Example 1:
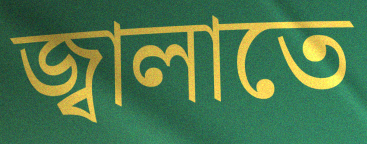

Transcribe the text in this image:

জ্বালাতে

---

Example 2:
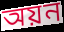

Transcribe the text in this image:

অয়ন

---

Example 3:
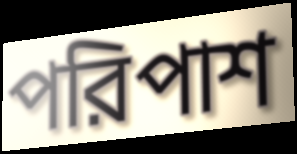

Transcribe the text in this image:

পরিপাশ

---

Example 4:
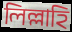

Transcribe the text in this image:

লিল্লাহি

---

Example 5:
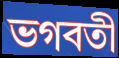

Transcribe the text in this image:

ভগবতী